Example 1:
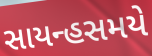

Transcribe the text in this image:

સાયન્હસમયે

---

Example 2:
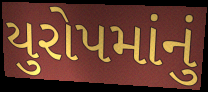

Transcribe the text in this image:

યુરોપમાંનું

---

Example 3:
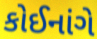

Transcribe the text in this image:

કોઈનાંગે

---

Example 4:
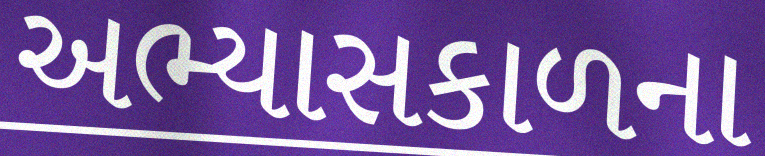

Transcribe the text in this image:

અભ્યાસકાળના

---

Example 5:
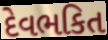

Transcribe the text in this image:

દેવભકિત